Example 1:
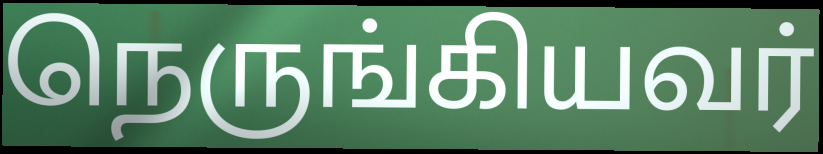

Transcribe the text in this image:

நெருங்கியவர்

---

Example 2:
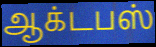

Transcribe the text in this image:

ஆக்டபஸ்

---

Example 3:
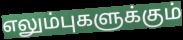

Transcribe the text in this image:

எலும்புகளுக்கும்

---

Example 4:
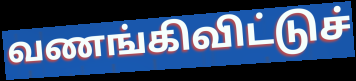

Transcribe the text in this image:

வணங்கிவிட்டுச்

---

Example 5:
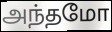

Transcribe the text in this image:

அந்தமோ